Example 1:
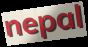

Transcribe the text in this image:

nepal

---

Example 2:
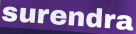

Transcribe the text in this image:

surendra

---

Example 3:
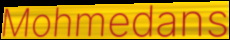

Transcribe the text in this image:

Mohmedans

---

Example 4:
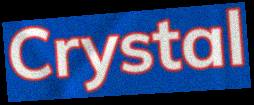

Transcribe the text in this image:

Crystal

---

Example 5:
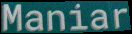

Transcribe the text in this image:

Maniar